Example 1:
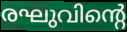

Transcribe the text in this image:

രഘുവിന്റെ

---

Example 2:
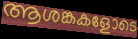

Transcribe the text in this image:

ആശങ്കകളോടെ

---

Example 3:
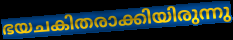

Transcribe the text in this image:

ഭയചകിതരാക്കിയിരുന്നു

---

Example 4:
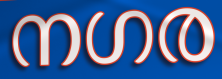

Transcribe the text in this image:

നഗര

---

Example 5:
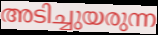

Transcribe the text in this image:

അടിച്ചുയരുന്ന